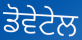
ਡੋਵੇਟੇਲ